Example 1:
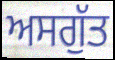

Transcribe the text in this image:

ਅਸਗੁੱਤ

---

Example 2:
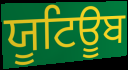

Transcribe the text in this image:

ਯੂਟਿਊਬ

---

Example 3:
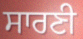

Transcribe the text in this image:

ਸਾਰਣੀ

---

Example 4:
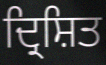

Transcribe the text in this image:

ਦ੍ਰਿਸ਼ਿਤ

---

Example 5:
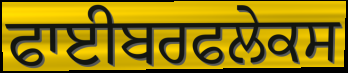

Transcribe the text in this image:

ਫਾਈਬਰਫਲੇਕਸ